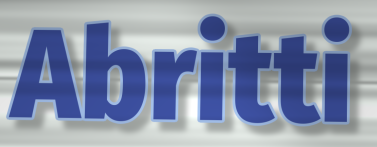
Abritti